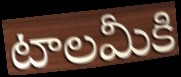
టాలమీకి